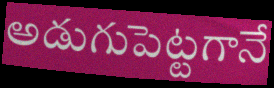
అడుగుపెట్టగానే